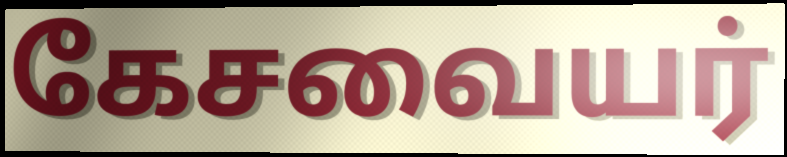
கேசவையர்